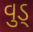
વુડ્